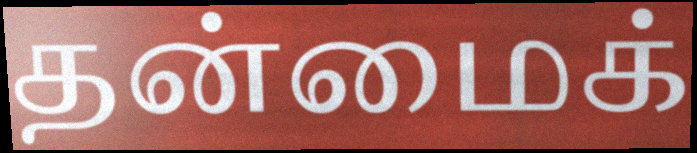
தன்மைக்